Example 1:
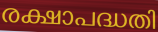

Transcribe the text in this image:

രക്ഷാപദ്ധതി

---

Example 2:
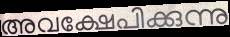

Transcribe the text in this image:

അവക്ഷേപിക്കുന്നു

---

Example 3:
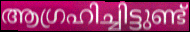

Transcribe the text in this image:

ആഗ്രഹിച്ചിട്ടുണ്ട്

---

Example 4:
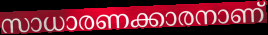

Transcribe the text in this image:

സാധാരണക്കാരനാണ്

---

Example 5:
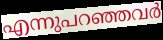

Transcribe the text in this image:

എന്നുപറഞ്ഞവർ